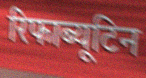
रिफाब्यूटिन